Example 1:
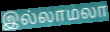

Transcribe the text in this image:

இல்லாமலா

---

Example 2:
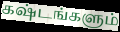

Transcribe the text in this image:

கஷ்டங்களும்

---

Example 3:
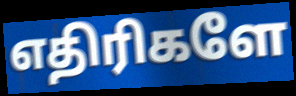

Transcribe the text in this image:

எதிரிகளே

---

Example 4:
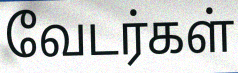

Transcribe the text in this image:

வேடர்கள்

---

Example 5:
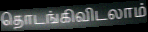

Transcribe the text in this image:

தொடங்கிவிடலாம்